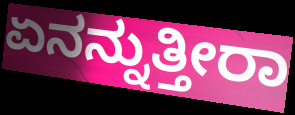
ಏನನ್ನುತ್ತೀರಾ